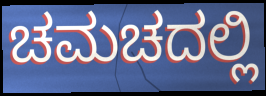
ಚಮಚದಲ್ಲಿ